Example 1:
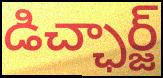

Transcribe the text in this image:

డిచ్ఛార్జ్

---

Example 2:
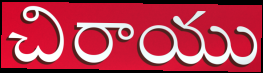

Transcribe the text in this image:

చిరాయు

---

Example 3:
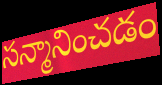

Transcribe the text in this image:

సన్మానించడం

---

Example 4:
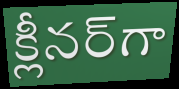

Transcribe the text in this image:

క్లీనర్‌గా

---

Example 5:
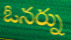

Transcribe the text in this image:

ఓనర్ను